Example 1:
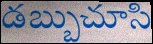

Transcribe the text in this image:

డబ్బుచూసి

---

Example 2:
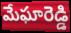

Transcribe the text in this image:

మేఘారెడ్డి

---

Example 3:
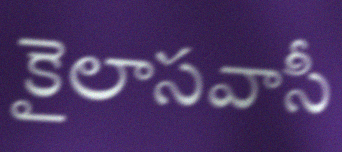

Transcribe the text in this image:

కైలాసవాసీ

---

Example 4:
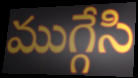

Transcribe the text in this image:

ముగ్గేసి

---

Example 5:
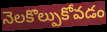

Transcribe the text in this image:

నెలకొల్పుకోవడం